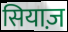
सियाज़